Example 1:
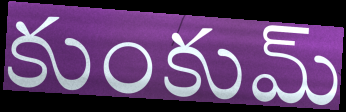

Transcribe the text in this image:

కుంకుమ్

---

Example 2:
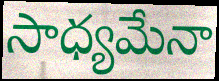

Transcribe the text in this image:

సాధ్యమేనా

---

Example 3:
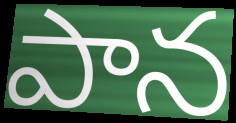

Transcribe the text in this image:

పాన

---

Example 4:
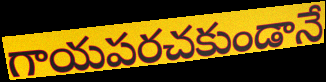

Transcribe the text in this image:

గాయపరచకుండానే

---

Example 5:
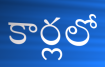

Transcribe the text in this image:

కార్లలో